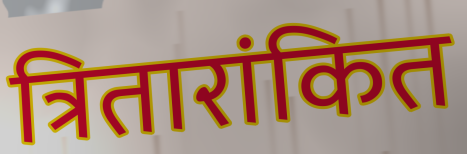
त्रितारांकित